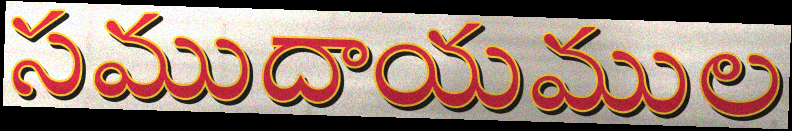
సముదాయముల